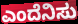
ಎಂದೆನಿಸು